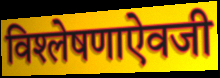
विश्लेषणाऐवजी